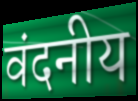
वंदनीय